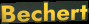
Bechert